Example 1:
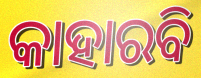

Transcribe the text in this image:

କାହାରବି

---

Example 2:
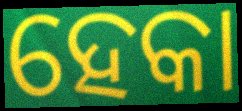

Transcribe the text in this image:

ହେକା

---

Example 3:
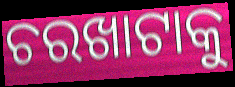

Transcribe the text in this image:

ଚରଖାଟାକୁ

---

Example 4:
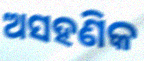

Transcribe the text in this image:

ଅସହଣିକ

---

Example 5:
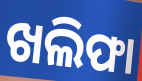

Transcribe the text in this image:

ଖଲିଫା